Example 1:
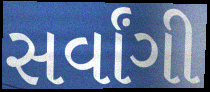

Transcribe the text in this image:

સર્વાંગી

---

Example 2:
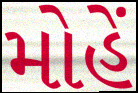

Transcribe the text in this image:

મોહેં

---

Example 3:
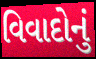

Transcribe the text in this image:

વિવાદોનું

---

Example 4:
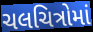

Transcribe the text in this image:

ચલચિત્રોમાં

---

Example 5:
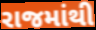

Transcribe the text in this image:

રાજમાંથી